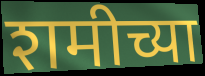
शमीच्या